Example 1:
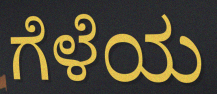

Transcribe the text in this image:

ಗೆಳೆಯ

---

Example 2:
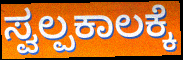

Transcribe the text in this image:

ಸ್ವಲ್ಪಕಾಲಕ್ಕೆ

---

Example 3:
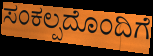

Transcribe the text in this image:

ಸಂಕಲ್ಪದೊಂದಿಗೆ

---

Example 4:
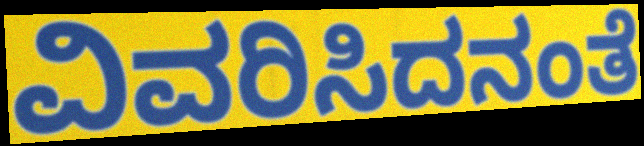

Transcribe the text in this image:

ವಿವರಿಸಿದನಂತೆ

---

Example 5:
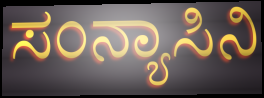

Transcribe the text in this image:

ಸಂನ್ಯಾಸಿನಿ